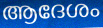
ആദേശം